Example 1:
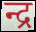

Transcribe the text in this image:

न्द्र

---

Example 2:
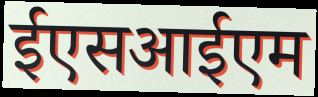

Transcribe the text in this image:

ईएसआईएम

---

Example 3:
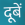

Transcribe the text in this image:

दूबें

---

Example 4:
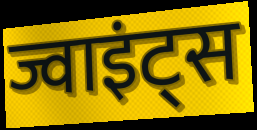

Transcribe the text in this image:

ज्वाइंट्स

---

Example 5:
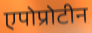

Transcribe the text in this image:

एपोप्रोटीन